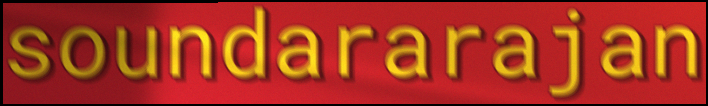
soundararajan